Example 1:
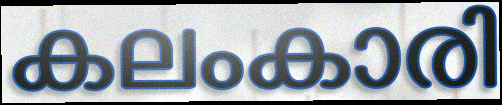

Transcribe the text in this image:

കലംകാരി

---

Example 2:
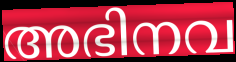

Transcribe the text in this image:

അഭിനവ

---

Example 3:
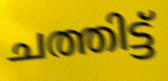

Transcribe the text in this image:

ചത്തിട്ട്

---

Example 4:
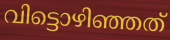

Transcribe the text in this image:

വിട്ടൊഴിഞ്ഞത്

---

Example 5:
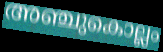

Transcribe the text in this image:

അഞ്ചുകൊല്ലം